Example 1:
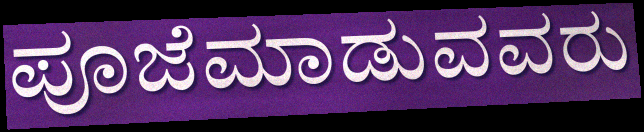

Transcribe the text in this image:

ಪೂಜೆಮಾಡುವವರು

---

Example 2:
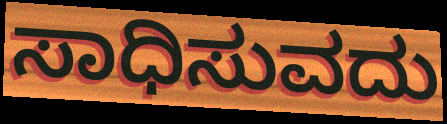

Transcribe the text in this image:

ಸಾಧಿಸುವದು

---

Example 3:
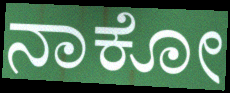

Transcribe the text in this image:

ನಾಕೋ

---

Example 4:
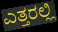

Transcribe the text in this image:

ಎತ್ತರಲ್ಲಿ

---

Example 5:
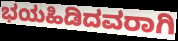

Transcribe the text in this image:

ಭಯಹಿಡಿದವರಾಗಿ